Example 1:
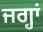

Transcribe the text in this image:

ਜਗ੍ਹਾਂ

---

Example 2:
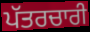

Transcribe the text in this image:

ਪੱਤਰਚਾਰੀ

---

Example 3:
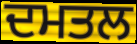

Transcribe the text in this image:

ਦਮਤਲ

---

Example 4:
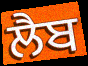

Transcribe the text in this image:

ਲੈਬ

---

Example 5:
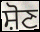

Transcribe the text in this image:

ਸ਼ੋਣ